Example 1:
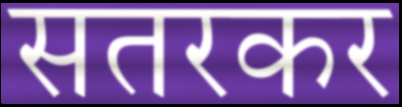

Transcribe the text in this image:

सतरकर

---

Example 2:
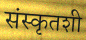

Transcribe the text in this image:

संस्कृतशी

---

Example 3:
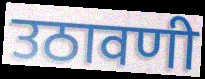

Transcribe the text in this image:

उठावणी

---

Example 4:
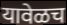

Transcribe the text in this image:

यावेळच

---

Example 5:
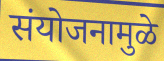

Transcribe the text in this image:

संयोजनामुळे